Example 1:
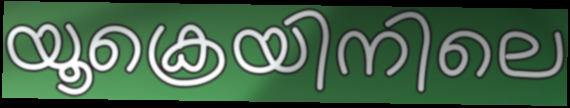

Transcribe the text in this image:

യൂക്രെയിനിലെ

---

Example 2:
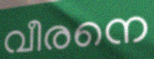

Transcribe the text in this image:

വീരനെ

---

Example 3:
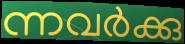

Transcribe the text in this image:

ന്നവർക്കു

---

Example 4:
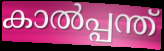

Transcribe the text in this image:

കാൽപ്പന്ത്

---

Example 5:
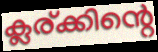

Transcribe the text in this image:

ക്ലര്ക്കിന്റെ